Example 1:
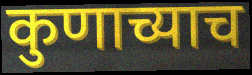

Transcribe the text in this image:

कुणाच्याच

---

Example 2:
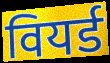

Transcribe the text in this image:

वियर्ड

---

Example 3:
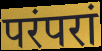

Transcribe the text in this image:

परंपरां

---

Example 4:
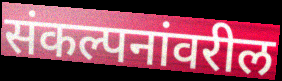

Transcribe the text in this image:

संकल्पनांवरील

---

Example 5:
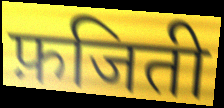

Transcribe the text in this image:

फ़जिती